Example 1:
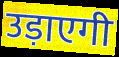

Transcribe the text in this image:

उड़ाएगी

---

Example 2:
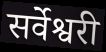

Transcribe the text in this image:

सर्वेश्वरी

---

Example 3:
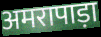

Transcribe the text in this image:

अमरापाड़ा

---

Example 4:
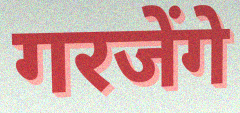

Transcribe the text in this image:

गरजेंगे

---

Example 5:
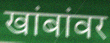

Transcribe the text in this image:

खांबांवर